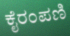
ಕೈರಂಪಣಿ